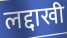
लद्दाखी